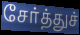
சேர்த்துச்